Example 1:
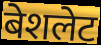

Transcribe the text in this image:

बेशलेट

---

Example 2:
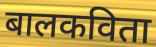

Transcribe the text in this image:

बालकविता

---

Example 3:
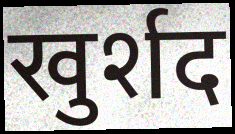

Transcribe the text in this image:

खुर्शद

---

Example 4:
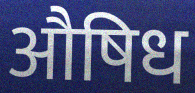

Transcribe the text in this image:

औषिध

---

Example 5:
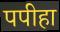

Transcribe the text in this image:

पपीहा